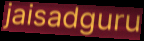
jaisadguru